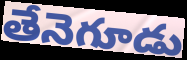
తేనెగూడు